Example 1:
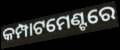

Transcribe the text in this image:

କମ୍ପାଟମେଣ୍ଟରେ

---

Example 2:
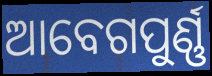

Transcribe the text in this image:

ଆବେଗପୁର୍ଣ୍ଣ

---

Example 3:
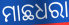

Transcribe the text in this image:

ମାଛଧରା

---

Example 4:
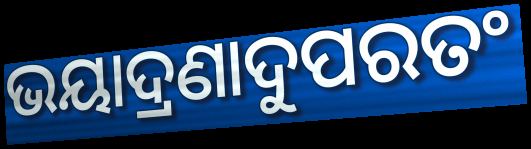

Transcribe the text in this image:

ଭୟାଦ୍ରଣାଦୁପରତଂ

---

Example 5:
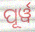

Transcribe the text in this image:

ପୂର୍ୱ